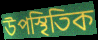
উপস্থিতিক